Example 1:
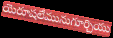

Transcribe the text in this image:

యెరూషలేమునుగూర్చియు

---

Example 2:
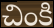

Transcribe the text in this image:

చింకి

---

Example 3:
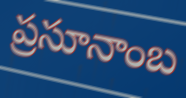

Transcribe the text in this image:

ప్రసూనాంబ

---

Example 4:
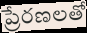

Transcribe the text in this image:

ప్రేరణలతో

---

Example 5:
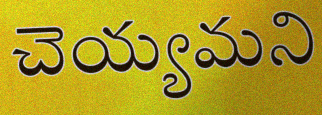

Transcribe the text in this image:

చెయ్యమని